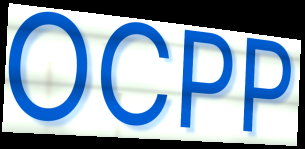
OCPP